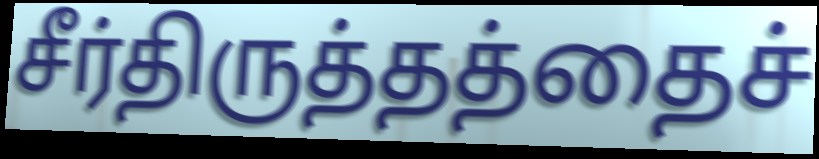
சீர்திருத்தத்தைச்